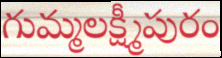
గుమ్మలక్ష్మీపురం